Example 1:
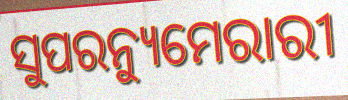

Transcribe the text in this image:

ସୁପରନ୍ୟୁମେରାରୀ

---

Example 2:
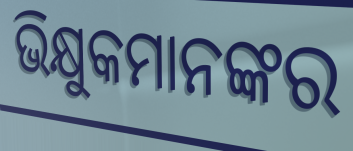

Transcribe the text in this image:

ଭିକ୍ଷୁକମାନଙ୍କର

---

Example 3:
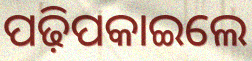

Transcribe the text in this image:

ପଢ଼ିପକାଇଲେ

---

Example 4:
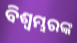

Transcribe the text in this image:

ବିଶ୍ୱମ୍ଭରଙ୍କ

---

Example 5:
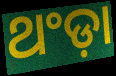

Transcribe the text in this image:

ଥଂଡ଼ା